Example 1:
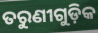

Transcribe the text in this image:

ତରୁଣୀଗୁଡ଼ିକ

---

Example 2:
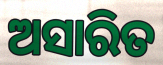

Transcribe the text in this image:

ଅସାରିତ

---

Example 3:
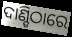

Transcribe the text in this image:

ଦାଣ୍ଡିଠାରେ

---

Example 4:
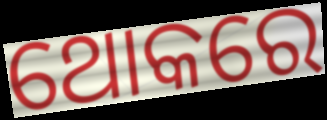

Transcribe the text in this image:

ଥୋକରେ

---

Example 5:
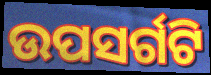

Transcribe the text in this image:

ଉପସର୍ଗଟି